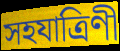
সহযাত্রিণী